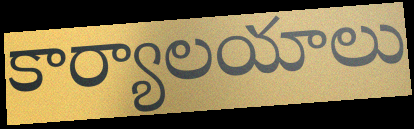
కార్యాలయాలు